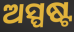
ଅସ୍ପଷ୍ଟ